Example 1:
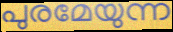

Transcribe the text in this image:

പുരമേയുന്ന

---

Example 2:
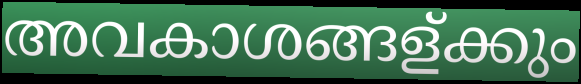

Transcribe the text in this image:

അവകാശങ്ങള്ക്കും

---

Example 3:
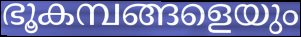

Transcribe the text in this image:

ഭൂകമ്പങ്ങളെയും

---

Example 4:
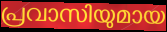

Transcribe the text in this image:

പ്രവാസിയുമായ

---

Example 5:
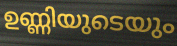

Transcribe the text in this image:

ഉണ്ണിയുടെയും